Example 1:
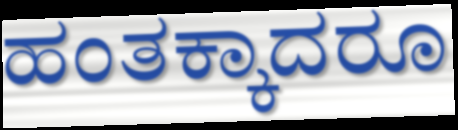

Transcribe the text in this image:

ಹಂತಕ್ಕಾದರೂ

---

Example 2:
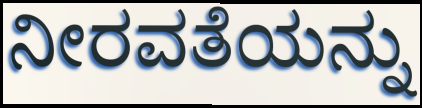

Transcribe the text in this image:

ನೀರವತೆಯನ್ನು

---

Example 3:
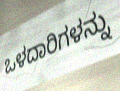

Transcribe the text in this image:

ಒಳದಾರಿಗಳನ್ನು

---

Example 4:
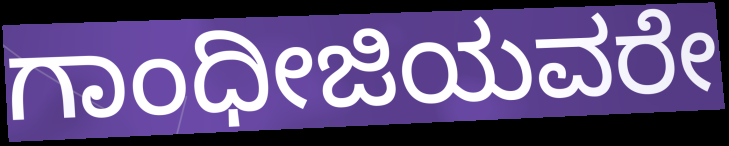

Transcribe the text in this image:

ಗಾಂಧೀಜಿಯವರೇ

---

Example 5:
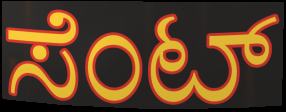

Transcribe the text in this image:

ಸೆಂಟ್